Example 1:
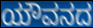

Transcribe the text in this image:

ಯೌವನದ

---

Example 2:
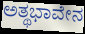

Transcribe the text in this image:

ಅತ್ಥಭಾವೇನ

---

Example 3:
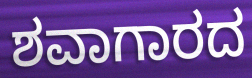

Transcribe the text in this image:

ಶವಾಗಾರದ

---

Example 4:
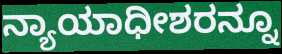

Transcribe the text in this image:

ನ್ಯಾಯಾಧೀಶರನ್ನೂ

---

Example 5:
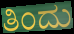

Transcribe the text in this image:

ತಿಂದು